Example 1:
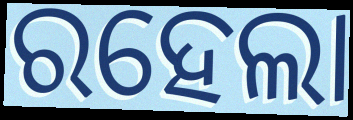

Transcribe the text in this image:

ରହେଲା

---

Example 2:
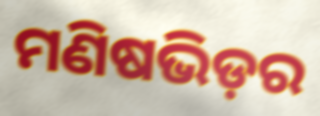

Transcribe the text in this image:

ମଣିଷଭିଡ଼ର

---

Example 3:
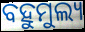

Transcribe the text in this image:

ବହୁମୁଲ୍ୟ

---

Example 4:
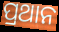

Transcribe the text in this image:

ପ୍ରଥାନ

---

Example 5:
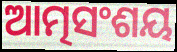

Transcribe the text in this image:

ଆତ୍ମସଂଶୟ